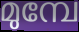
മുമ്പേ